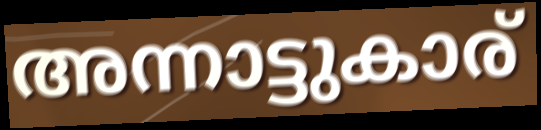
അന്നാട്ടുകാര്